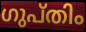
ഗുപ്തിം